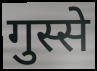
गुस्से